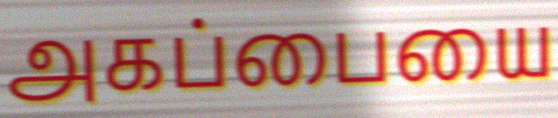
அகப்பையை